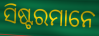
ସିଷ୍ଟରମାନେ